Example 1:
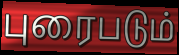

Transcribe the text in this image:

புரைபடும்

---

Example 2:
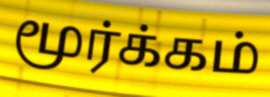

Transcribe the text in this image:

மூர்க்கம்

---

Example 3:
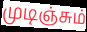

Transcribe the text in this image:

முடிஞ்சும்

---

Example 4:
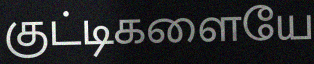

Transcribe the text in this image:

குட்டிகளையே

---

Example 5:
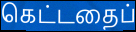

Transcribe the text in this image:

கெட்டதைப்